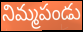
నిమ్మపండు